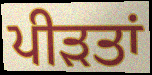
ਪੀੜਤਾਂ